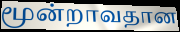
மூன்றாவதான